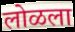
लोळला